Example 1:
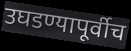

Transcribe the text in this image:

उघडण्यापूर्वीच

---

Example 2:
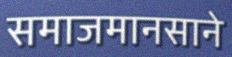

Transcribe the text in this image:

समाजमानसाने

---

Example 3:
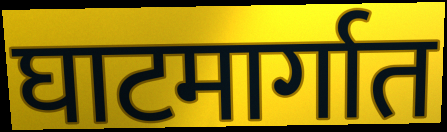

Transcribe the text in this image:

घाटमार्गात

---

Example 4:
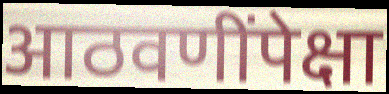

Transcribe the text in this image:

आठवणींपेक्षा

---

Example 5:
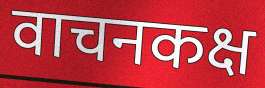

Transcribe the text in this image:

वाचनकक्ष